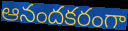
ఆనందకరంగా